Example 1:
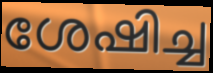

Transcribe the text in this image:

ശേഷിച്ച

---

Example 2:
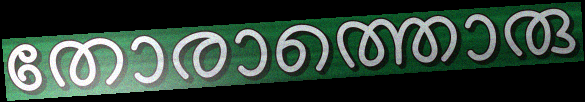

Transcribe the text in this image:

തോരാത്തൊരു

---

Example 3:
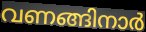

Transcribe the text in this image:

വണങ്ങിനാർ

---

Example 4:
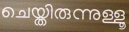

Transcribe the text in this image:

ചെയ്തിരുന്നുള്ളൂ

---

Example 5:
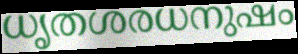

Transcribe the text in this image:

ധൃതശരധനുഷം